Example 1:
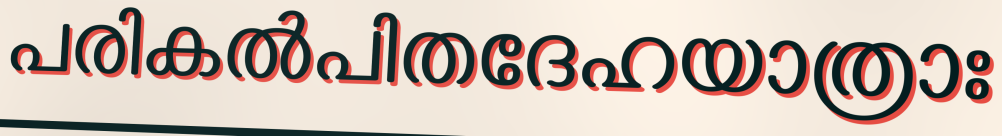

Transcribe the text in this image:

പരികൽപിതദേഹയാത്രാഃ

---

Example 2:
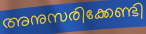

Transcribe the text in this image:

അനുസരിക്കേണ്ടി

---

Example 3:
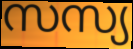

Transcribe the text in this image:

സസ്യ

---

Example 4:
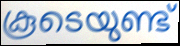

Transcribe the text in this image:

കൂടെയുണ്ട്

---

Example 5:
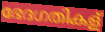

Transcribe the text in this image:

ഭേദഗതികള്